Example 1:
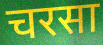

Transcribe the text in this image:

चरसा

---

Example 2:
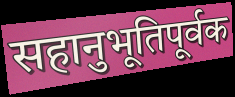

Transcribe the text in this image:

सहानुभूतिपूर्वक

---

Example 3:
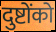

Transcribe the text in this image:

दुष्टोंको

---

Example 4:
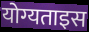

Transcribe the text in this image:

योग्यताइस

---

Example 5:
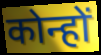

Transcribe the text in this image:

कोन्हों